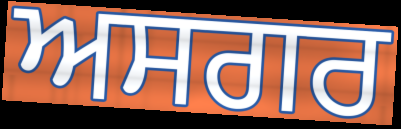
ਅਸਗਰ